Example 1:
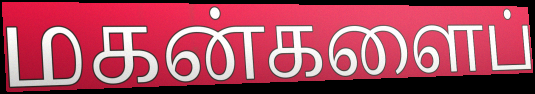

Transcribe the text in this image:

மகன்களைப்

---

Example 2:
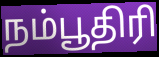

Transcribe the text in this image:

நம்பூதிரி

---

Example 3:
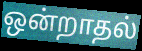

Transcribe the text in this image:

ஒன்றாதல்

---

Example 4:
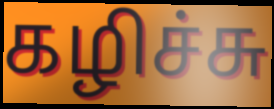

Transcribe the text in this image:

கழிச்சு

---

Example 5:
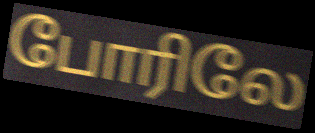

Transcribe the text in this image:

போரிலே